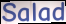
Salad